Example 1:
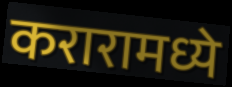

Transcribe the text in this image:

करारामध्ये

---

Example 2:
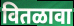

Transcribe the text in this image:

वितळावा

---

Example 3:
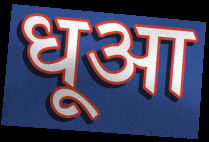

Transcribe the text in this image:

धूआ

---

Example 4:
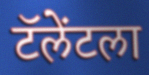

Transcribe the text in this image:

टॅलेंटला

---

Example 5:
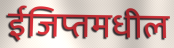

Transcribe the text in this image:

ईजिप्तमधील